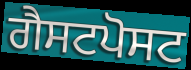
ਗੈਸਟਪੋਸਟ